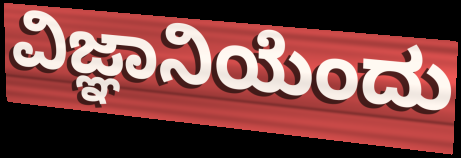
ವಿಜ್ಞಾನಿಯೆಂದು